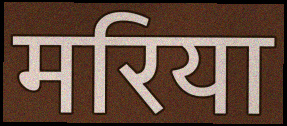
मरिया